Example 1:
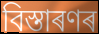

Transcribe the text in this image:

বিস্তাৰণৰ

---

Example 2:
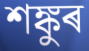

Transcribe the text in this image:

শঙ্কুৰ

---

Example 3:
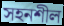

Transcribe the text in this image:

সহনশীল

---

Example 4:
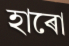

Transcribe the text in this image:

হাৰো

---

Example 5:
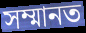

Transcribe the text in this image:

সম্মানত